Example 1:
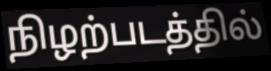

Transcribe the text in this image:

நிழற்படத்தில்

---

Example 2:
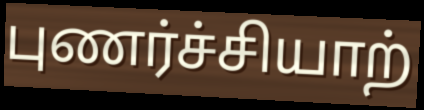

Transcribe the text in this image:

புணர்ச்சியாற்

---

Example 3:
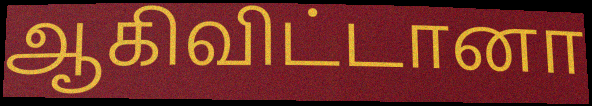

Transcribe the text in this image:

ஆகிவிட்டானா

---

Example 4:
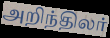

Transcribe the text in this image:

அறிந்திலர்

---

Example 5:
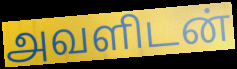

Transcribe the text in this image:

அவளிடன்